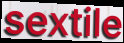
sextile